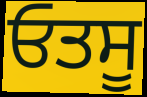
ਓਤਸੂ